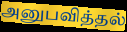
அனுபவித்தல்